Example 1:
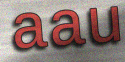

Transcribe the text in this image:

aau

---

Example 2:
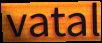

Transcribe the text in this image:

vatal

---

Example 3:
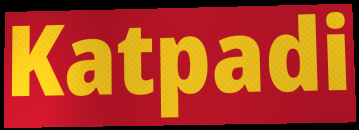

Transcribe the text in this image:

Katpadi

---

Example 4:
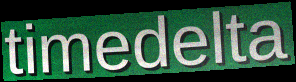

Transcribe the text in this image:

timedelta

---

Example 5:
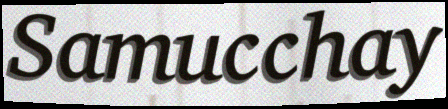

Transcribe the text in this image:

Samucchay